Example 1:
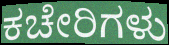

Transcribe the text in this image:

ಕಚೇರಿಗಳು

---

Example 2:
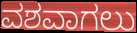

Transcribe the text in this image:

ವಶವಾಗಲು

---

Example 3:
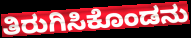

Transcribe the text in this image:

ತಿರುಗಿಸಿಕೊಂಡನು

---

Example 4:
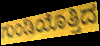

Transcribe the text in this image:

ಗುಂಡಿಯೊತ್ತಿದ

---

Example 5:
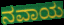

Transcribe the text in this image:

ನವಾಯ